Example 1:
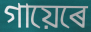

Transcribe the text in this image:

গায়েৰে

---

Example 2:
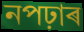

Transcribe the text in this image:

নপঢ়াৰ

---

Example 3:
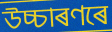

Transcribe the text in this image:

উচ্চাৰণৰে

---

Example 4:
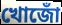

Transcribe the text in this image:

খোজোঁ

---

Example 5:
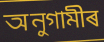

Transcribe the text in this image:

অনুগামীৰ